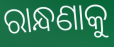
ରାନ୍ଧଣାକୁ